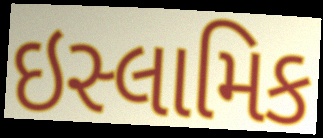
ઇસ્લામિક